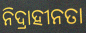
ନିଦ୍ରାହୀନତା